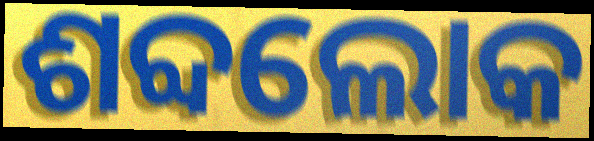
ଶବ୍ଦଲୋକ